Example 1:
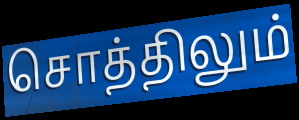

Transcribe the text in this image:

சொத்திலும்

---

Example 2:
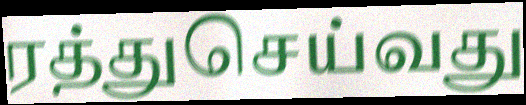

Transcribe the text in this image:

ரத்துசெய்வது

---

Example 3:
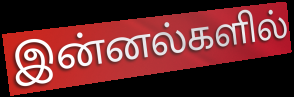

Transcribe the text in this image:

இன்னல்களில்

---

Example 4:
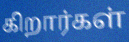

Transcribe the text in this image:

கிறார்கள்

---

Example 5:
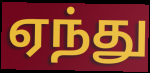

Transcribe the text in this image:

ஏந்து